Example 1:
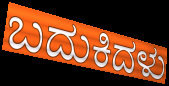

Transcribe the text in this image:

ಬದುಕಿದಳು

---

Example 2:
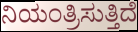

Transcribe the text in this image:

ನಿಯಂತ್ರಿಸುತ್ತಿದೆ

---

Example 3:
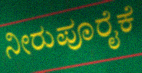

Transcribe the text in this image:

ನೀರುಪೂರೈಕೆ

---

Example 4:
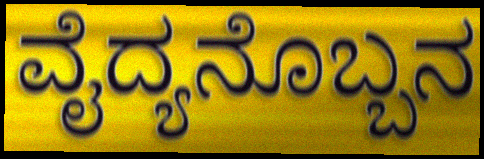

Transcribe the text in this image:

ವೈದ್ಯನೊಬ್ಬನ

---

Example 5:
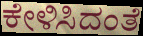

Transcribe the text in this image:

ಕೇಳಿಸಿದಂತೆ